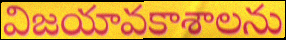
విజయావకాశాలను